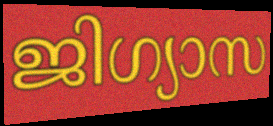
ജിഗ്യാസ